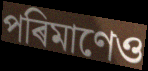
পৰিমাণেও